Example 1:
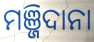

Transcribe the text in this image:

ମଞ୍ଜିଦାନା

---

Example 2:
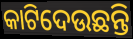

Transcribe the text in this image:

କାଟିଦେଉଛନ୍ତି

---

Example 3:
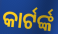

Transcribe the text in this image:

କାର୍ଟର୍ଙ୍କ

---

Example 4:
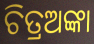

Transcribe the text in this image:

ଚିତ୍ରଅଙ୍କା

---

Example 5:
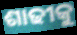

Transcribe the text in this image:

ଶାଢୀକୁ